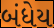
બંધેય